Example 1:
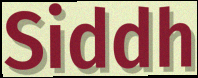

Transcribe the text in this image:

Siddh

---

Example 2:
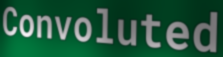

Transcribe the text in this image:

Convoluted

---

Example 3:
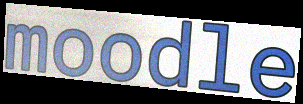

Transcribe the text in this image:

moodle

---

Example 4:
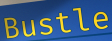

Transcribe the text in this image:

Bustle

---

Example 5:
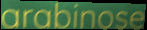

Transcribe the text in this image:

arabinose